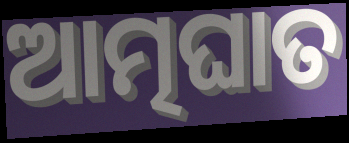
ଆତ୍ମଘାତ